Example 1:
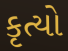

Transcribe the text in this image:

કૃત્યો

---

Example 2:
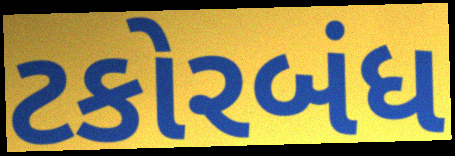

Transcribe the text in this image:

ટકોરબંધ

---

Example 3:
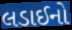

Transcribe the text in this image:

લડાઈનો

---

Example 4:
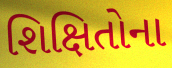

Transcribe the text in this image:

શિક્ષિતોના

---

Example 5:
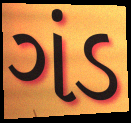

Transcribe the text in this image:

ગંડ